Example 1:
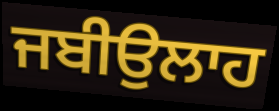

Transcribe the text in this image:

ਜਬੀਉਲਾਹ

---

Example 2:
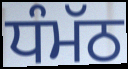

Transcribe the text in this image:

ਧੰਮੱਠ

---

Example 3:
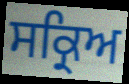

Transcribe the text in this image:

ਸਕ੍ਰਿਅ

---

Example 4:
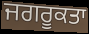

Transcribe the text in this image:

ਜਗਰੂਕਤਾ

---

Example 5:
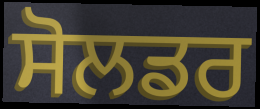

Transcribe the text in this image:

ਸੋਲਡਰ